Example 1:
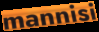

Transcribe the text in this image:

mannisi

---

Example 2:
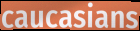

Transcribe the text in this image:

caucasians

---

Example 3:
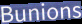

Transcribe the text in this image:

Bunions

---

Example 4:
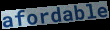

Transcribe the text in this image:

afordable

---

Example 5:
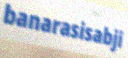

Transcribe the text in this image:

banarasisabji